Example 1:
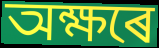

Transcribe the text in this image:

অক্ষৰে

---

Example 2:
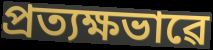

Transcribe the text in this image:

প্ৰত্যক্ষভাৱে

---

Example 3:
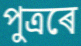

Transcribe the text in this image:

পুত্ৰৰে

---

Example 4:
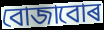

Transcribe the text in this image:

বোজাবোৰ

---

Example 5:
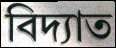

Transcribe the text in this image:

বিদ্যাত